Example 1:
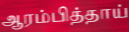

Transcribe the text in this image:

ஆரம்பித்தாய்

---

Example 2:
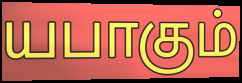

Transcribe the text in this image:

யபாகும்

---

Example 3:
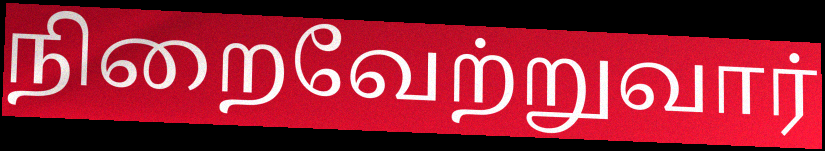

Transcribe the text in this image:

நிறைவேற்றுவார்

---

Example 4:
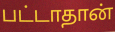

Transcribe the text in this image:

பட்டாதான்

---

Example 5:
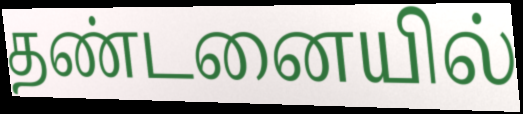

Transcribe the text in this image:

தண்டனையில்